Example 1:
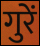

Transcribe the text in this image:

गुरें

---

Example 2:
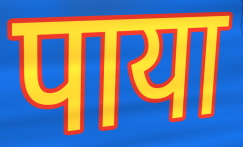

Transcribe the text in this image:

पाया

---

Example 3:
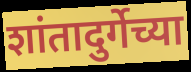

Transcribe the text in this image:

शांतादुर्गेच्या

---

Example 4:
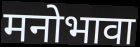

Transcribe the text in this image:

मनोभावा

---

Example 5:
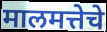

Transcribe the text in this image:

मालमत्तेचे